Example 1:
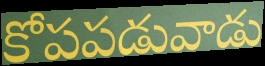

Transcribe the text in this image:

కోపపడువాడు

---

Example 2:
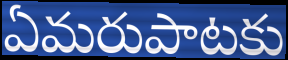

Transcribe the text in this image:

ఏమరుపాటకు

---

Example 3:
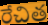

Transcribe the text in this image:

రేచిత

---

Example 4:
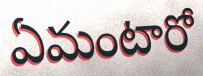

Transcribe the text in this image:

ఏమంటారో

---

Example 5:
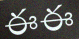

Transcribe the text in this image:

ఈఈ